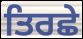
ਤਿਰਛੇ